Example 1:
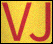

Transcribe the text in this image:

VJ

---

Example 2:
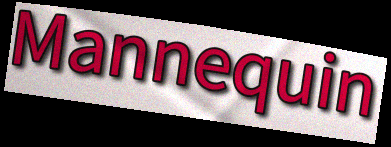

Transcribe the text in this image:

Mannequin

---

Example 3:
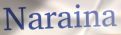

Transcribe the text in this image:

Naraina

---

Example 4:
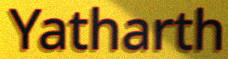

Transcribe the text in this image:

Yatharth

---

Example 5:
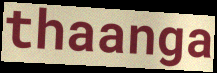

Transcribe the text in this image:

thaanga